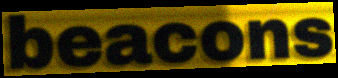
beacons